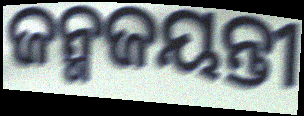
ଜନ୍ମଜୟନ୍ତୀ